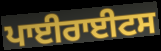
ਪਾਈਰਾਈਟਸ